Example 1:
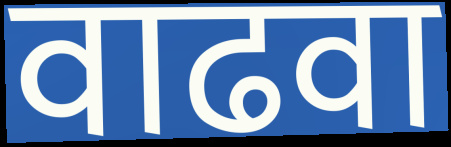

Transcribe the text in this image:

वाढवा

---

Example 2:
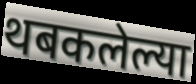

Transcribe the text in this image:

थबकलेल्या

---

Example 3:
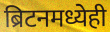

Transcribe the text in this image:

ब्रिटनमध्येही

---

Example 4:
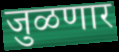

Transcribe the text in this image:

जुळणार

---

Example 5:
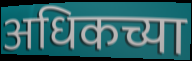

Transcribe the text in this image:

अधिकच्या